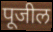
पूजील